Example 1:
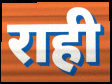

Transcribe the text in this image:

राही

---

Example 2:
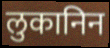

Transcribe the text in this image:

लुकानिन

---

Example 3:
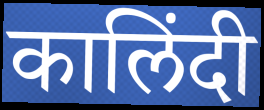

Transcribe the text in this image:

कालिंदी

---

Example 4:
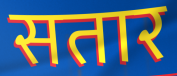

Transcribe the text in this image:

सतार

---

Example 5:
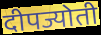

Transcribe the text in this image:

दीपज्योती